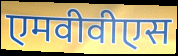
एमवीवीएस